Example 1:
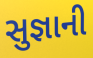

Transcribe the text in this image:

સુજ્ઞાની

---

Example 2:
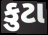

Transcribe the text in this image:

કુટા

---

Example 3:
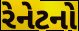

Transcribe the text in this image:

રેનેટનો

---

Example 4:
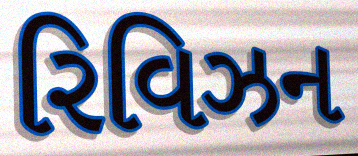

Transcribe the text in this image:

રિવિઝન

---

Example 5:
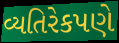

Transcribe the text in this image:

વ્યતિરેકપણે